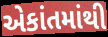
એકાંતમાંથી